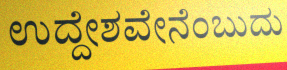
ಉದ್ದೇಶವೇನೆಂಬುದು